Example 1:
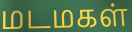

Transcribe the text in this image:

மடமகள்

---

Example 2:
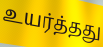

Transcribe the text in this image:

உயர்த்தது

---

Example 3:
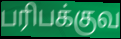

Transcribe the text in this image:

பரிபக்குவ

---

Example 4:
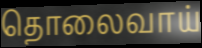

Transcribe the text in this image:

தொலைவாய்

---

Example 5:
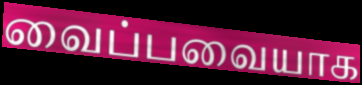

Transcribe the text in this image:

வைப்பவையாக